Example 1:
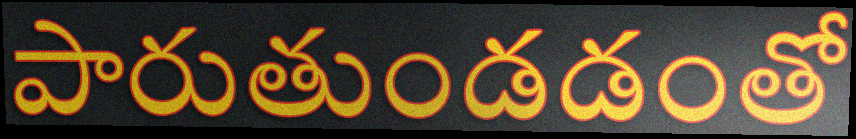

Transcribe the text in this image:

పారుతుండడంతో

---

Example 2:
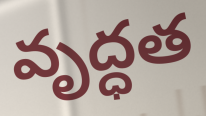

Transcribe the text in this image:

వృద్ధత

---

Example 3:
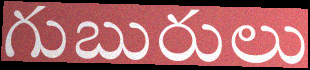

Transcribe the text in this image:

గుబురులు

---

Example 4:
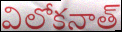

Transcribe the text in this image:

విలోకనాత్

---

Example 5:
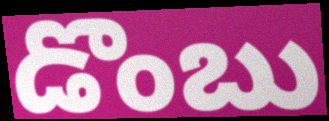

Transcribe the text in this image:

డొంబు